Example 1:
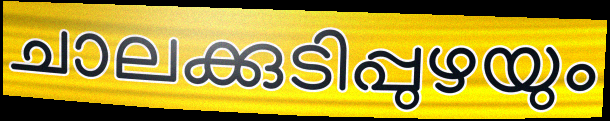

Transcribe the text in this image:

ചാലക്കുടിപ്പുഴയും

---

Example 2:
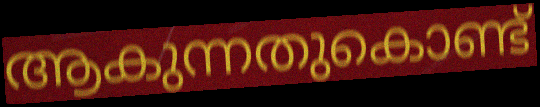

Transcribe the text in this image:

ആകുന്നതുകൊണ്ട്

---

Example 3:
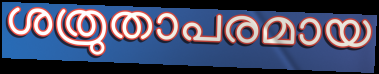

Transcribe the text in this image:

ശത്രുതാപരമായ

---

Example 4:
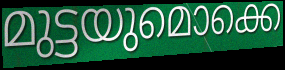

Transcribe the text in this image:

മുട്ടയുമൊക്കെ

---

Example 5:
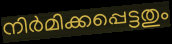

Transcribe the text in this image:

നിർമിക്കപ്പെട്ടതും